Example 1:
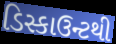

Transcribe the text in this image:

ડિસ્કાઉન્ટથી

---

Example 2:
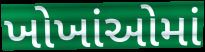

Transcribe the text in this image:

ખોખાંઓમાં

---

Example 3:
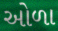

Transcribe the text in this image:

ઓળા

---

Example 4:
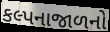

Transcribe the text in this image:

કલ્પનાજાળનો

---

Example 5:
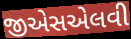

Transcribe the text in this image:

જીએસએલવી